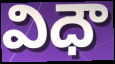
విధౌ